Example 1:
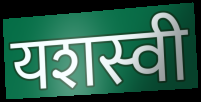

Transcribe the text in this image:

यशस्‍वी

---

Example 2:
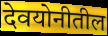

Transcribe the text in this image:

देवयोनीतील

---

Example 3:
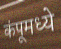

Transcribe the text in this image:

कंपूमध्ये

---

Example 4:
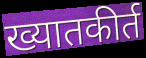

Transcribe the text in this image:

ख्यातकीर्त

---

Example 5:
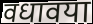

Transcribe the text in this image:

वधावया